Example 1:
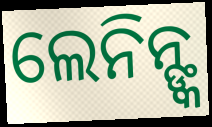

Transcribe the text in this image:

ଲେନିନ୍ଙ୍କ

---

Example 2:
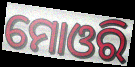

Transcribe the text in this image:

ମୋଓରି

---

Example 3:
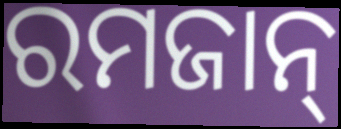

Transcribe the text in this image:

ରମଜାନ୍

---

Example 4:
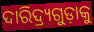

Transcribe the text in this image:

ଦାରିଦ୍ର୍ୟଗୁଡ଼ାକୁ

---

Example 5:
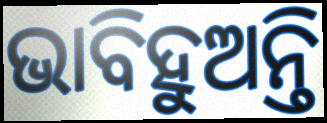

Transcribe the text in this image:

ଭାବିହୁଅନ୍ତି